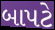
બાપટે